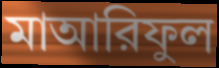
মাআরিফুল